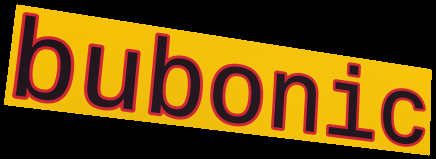
bubonic